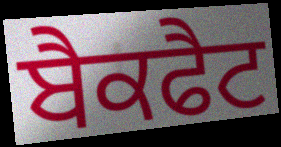
ਬੈਕਫੈਟ